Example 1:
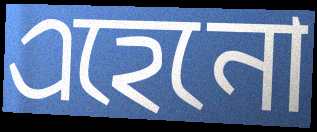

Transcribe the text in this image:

এহেনো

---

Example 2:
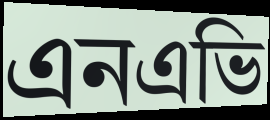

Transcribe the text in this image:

এনএভি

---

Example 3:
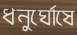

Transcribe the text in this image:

ধনুর্ঘোষে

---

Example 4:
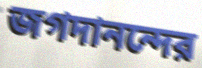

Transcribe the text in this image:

জগদানন্দের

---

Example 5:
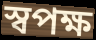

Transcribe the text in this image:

স্বপক্ষ